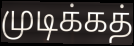
முடிக்கத்